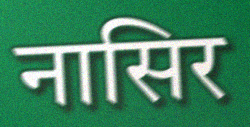
नासिर